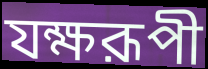
যক্ষরূপী